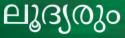
ലൂദ്യരും